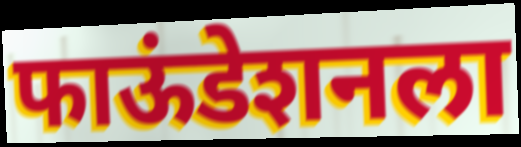
फाऊंडेशनला